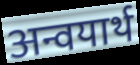
अन्वयार्थ